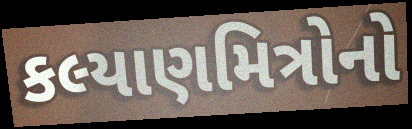
કલ્યાણમિત્રોનો